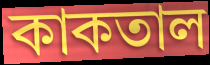
কাকতাল